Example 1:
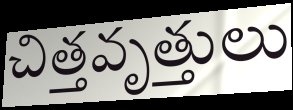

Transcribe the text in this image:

చిత్తవృత్తులు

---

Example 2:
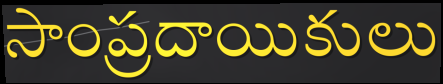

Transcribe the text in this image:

సాంప్రదాయికులు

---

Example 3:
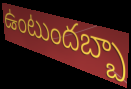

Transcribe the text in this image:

ఉంటుందబ్బా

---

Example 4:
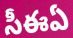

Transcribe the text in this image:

సీఈఏ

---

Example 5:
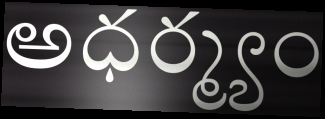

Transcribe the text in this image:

అధర్మ్యం